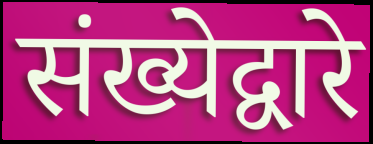
संख्येद्वारे